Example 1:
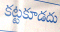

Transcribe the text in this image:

కట్టకూడదు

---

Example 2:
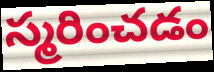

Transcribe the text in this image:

స్మరించడం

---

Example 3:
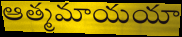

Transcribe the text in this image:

ఆత్మమాయయా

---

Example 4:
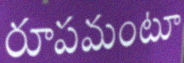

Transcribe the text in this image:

రూపమంటూ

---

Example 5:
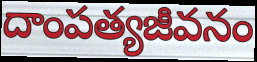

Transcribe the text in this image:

దాంపత్యజీవనం